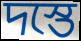
দস্তে